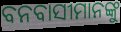
ବନବାସୀମାନଙ୍କୁ